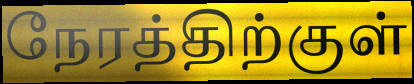
நேரத்திற்குள்